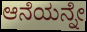
ಆನೆಯನ್ನೇ